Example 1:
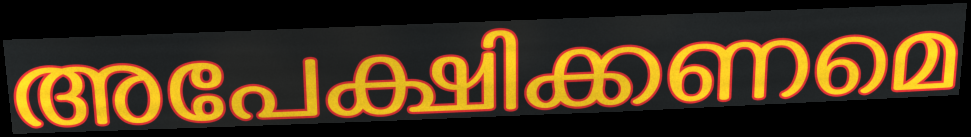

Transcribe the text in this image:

അപേക്ഷിക്കണമെ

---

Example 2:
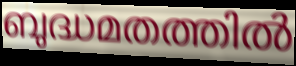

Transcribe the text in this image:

ബുദ്ധമതത്തിൽ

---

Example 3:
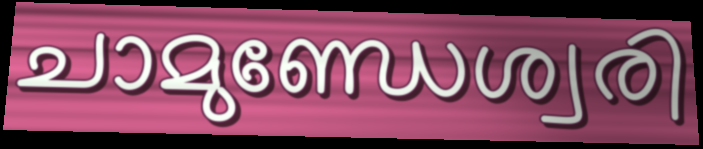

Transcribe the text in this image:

ചാമുണ്ഡേശ്വരി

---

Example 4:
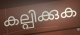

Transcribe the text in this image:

കല്പിക്കുക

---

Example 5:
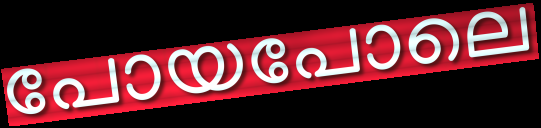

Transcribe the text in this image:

പോയപോലെ